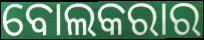
ବୋଲକରାର